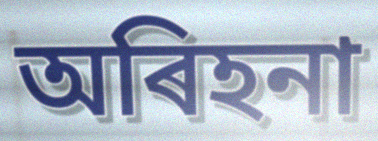
অৰিহনা